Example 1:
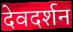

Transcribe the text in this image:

देवदर्शन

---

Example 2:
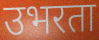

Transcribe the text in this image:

उभरता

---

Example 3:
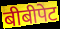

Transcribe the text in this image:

बीबीपेट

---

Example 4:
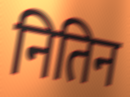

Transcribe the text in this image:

नितिन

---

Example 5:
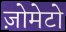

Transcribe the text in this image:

ज़ोमेटो